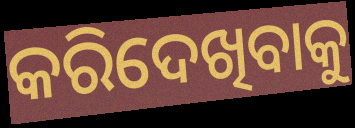
କରିଦେଖିବାକୁ